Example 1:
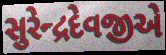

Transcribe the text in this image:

સુરેન્દ્રદેવજીએ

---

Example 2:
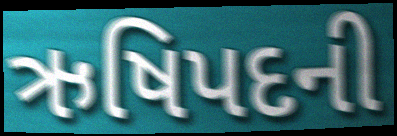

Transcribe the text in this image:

ઋષિપદની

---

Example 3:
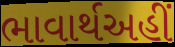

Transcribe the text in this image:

ભાવાર્થઅહીં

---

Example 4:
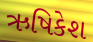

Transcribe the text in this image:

ઋષિકેશ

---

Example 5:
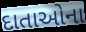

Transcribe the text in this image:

દાતાઓના